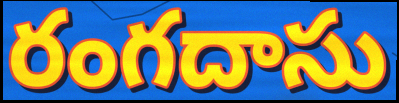
రంగదాసు